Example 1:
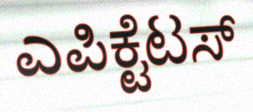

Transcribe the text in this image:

ಎಪಿಕ್ಟೆಟಸ್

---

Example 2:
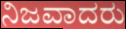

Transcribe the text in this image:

ನಿಜವಾದರು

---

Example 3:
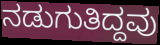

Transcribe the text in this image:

ನಡುಗುತಿದ್ದವು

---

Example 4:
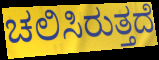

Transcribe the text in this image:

ಚಲಿಸಿರುತ್ತದೆ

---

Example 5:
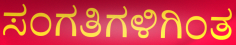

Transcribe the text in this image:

ಸಂಗತಿಗಳಿಗಿಂತ